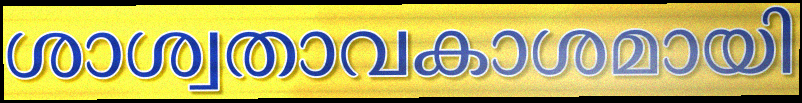
ശാശ്വതാവകാശമായി